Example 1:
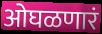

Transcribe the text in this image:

ओघळणारं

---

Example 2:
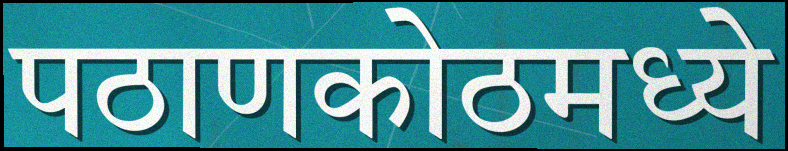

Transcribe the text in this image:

पठाणकोठमध्ये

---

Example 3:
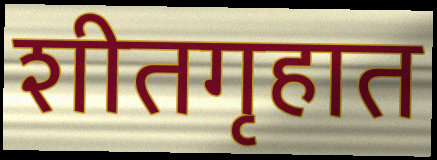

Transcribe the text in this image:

शीतगृहात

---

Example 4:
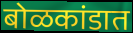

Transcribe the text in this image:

बोळकांडात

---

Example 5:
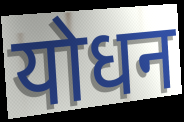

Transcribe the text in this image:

योधन